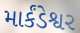
માર્કંડેશ્વર